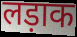
लड़ाक